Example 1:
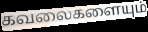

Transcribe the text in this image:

கவலைகளையும்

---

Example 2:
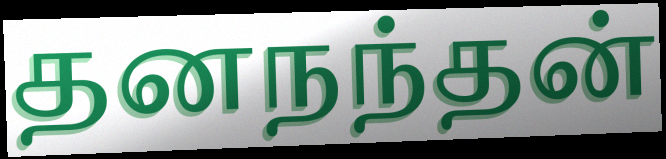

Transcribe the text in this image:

தனநந்தன்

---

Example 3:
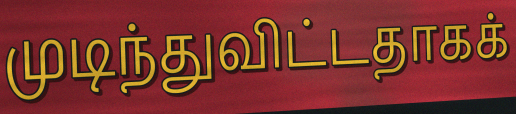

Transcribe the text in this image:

முடிந்துவிட்டதாகக்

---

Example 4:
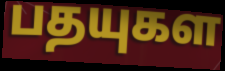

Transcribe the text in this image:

பதயுகள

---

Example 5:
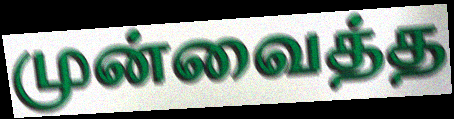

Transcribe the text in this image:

முன்வைத்த